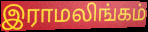
இராமலிங்கம்